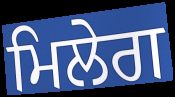
ਮਿਲੇਗ